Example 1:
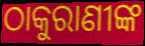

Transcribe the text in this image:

ଠାକୁରାଣୀଙ୍କ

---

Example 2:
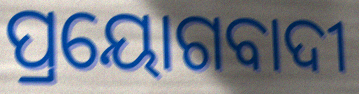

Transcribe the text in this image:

ପ୍ରୟୋଗବାଦୀ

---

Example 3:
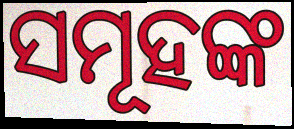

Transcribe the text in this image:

ସମୂହଙ୍କ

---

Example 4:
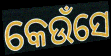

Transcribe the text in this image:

କେଉଁସେ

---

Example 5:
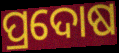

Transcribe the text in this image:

ପ୍ରଦୋଷ